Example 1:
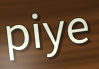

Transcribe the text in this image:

piye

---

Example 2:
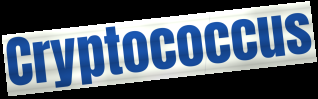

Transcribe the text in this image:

Cryptococcus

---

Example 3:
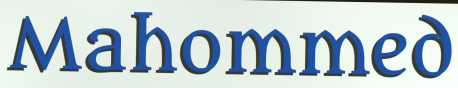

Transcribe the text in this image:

Mahommed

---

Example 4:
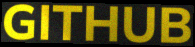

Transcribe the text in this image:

GITHUB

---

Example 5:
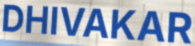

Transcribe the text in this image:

DHIVAKAR